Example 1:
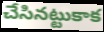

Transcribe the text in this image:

చేసినట్టుకాక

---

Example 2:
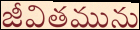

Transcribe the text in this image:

జీవితమును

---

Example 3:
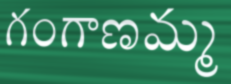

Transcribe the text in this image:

గంగాణమ్మ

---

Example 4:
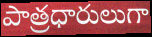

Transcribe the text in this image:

పాత్రధారులుగా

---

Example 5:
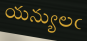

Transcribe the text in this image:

యన్యులఁ